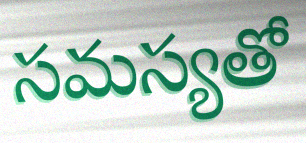
సమస్యతో